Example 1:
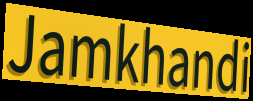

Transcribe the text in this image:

Jamkhandi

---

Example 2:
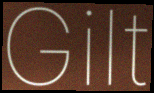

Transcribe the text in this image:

Gilt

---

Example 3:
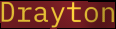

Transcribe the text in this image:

Drayton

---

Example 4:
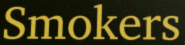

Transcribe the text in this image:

Smokers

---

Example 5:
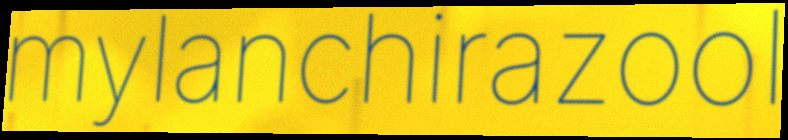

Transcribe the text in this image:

mylanchirazool